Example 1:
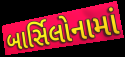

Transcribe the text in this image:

બાર્સિલોનામાં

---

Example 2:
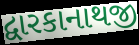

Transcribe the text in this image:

દ્વારકાનાથજી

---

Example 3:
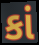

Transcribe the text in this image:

કાં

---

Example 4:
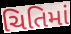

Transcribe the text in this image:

ચિતિમાં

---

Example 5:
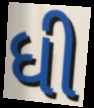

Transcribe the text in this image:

ધી